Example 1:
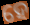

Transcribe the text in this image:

ହେ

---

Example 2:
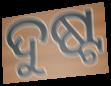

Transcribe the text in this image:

ଦୁଷ୍ଟ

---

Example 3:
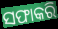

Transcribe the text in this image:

ସଫାକରି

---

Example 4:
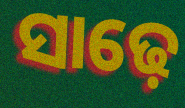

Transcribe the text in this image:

ସାଢ଼େ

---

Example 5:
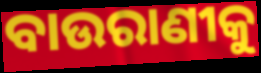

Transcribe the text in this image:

ବାଉରାଣୀକୁ